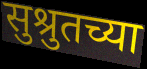
सुश्रुतच्या